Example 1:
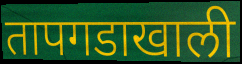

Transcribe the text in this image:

तापगडाखाली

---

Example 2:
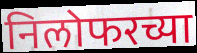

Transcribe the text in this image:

निलोफरच्या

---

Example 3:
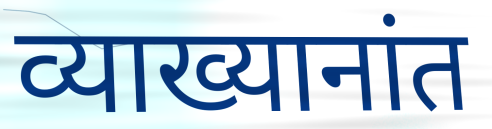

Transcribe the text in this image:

व्याख्यानांत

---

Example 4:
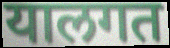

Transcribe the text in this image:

यालगत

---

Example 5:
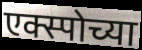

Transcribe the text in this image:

एक्स्पोच्या